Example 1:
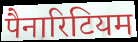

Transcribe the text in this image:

पैनारिटियम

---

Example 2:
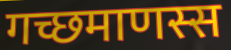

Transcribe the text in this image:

गच्छमाणस्स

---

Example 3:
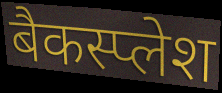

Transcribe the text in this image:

बैकस्प्लेश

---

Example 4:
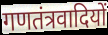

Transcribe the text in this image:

गणतंत्रवादियों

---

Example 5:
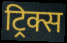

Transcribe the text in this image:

ट्रिक्स